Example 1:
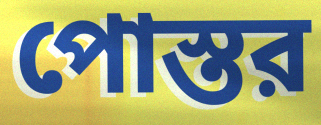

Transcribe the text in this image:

পোস্তর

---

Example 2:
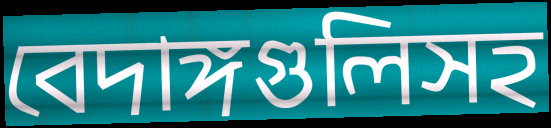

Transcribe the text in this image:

বেদাঙ্গগুলিসহ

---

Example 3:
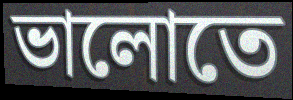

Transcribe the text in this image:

ভালোতে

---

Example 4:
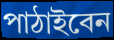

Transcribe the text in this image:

পাঠাইবেন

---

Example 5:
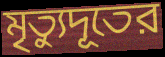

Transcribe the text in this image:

মৃত্যুদূতের